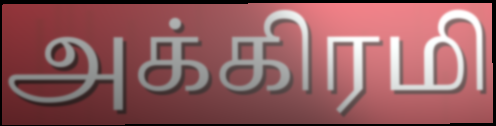
அக்கிரமி